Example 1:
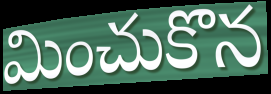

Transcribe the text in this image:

మించుకొన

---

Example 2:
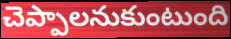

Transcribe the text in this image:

చెప్పాలనుకుంటుంది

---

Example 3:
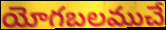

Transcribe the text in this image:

యోగబలముచే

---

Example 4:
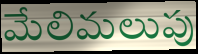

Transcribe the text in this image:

మేలిమలుపు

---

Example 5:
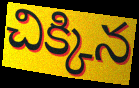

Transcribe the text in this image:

చిక్కిన